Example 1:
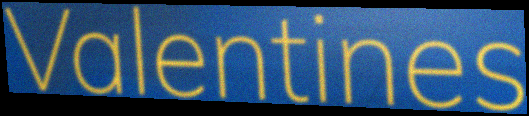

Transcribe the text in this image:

Valentines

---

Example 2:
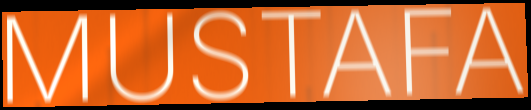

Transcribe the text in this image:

MUSTAFA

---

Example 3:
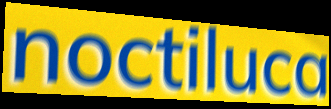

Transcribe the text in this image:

noctiluca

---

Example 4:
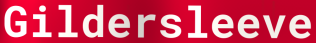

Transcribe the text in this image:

Gildersleeve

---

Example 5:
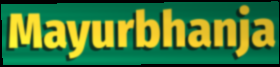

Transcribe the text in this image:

Mayurbhanja